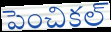
పెంచికల్